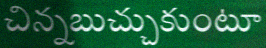
చిన్నబుచ్చుకుంటూ